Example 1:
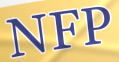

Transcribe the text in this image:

NFP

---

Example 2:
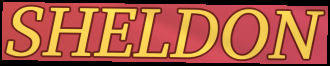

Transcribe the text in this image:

SHELDON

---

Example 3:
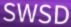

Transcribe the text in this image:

SWSD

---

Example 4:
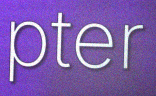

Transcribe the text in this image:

pter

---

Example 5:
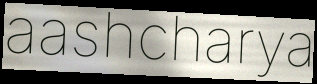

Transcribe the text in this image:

aashcharya